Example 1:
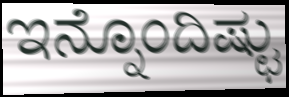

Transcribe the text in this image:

ಇನ್ನೊಂದಿಷ್ಟು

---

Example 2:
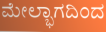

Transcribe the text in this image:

ಮೇಲ್ಭಾಗದಿಂದ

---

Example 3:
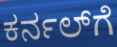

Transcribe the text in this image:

ಕರ್ನಲ್‌ಗೆ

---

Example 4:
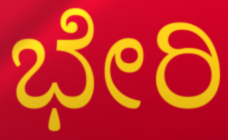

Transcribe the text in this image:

ಭೇರಿ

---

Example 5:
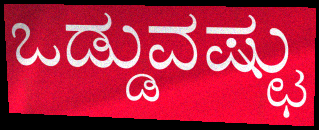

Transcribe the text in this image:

ಒಡ್ಡುವಷ್ಟು